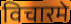
विचारमे